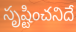
సృష్టించనిదే